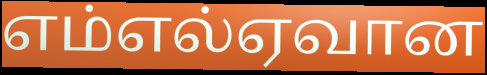
எம்எல்ஏவான